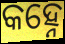
କହ୍ନେ